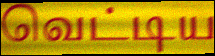
வெட்டிய